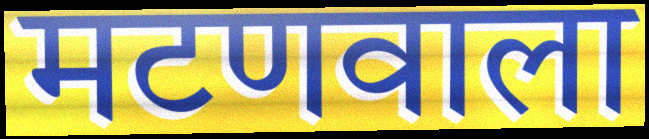
मटणवाला